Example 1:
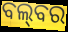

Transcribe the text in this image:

ବଲ୍‌ବର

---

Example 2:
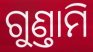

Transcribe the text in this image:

ଗୁଣ୍ତାମି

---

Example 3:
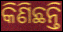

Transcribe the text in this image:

କିଣିଛନ୍ତି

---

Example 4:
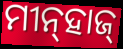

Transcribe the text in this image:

ମୀନ୍‌ହାଜ୍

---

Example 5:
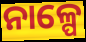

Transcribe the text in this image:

ନାଳ୍ପେ